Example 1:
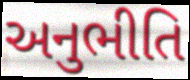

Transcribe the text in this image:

અનુભીતિ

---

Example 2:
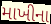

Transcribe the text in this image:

માખીના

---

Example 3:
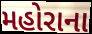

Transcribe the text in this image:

મહોરાના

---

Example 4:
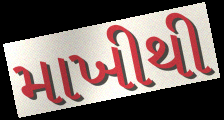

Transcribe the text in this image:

માખીથી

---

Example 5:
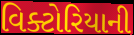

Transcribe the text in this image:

વિક્ટોરિયાની